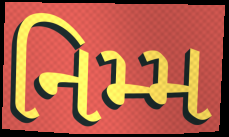
નિમ્મ